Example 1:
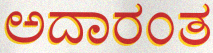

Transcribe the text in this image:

ಅದಾರಂತ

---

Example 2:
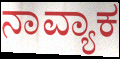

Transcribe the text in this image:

ನಾವ್ಯಾಕ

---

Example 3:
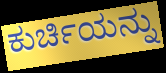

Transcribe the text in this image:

ಕುರ್ಚಿಯನ್ನು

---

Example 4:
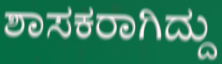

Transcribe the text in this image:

ಶಾಸಕರಾಗಿದ್ದು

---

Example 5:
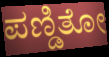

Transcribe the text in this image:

ಪಣ್ಡಿತೋ